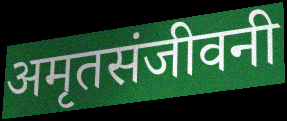
अमृतसंजीवनी